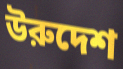
উরুদেশ